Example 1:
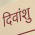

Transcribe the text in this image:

दिवांशु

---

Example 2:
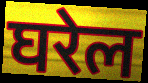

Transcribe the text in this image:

घरेल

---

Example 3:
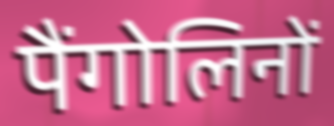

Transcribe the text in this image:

पैंगोलिनों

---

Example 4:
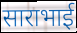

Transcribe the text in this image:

साराभाई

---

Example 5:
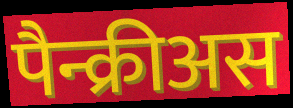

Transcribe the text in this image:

पैन्क्रीअस